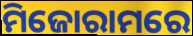
ମିଜୋରାମରେ